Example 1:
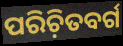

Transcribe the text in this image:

ପରିଚ଼ିତବର୍ଗ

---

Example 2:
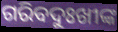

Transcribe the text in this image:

ଗରିବଦୁଃଖୀଙ୍କ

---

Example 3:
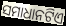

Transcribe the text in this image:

ସମାଧାନଟିଏ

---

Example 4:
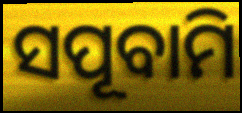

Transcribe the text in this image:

ସପୂବାମି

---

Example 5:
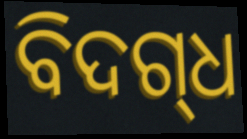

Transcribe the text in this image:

ବିଦଗ୍‍ଧ